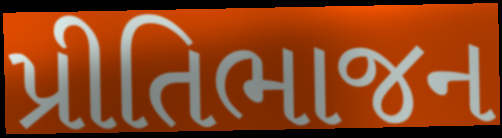
પ્રીતિભાજન